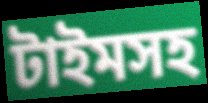
টাইমসহ